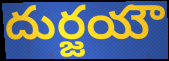
దుర్జయౌ